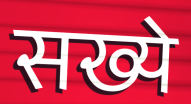
सख्ये